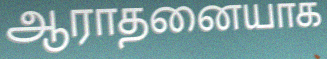
ஆராதனையாக